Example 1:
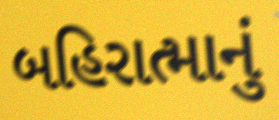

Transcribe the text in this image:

બહિરાત્માનું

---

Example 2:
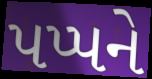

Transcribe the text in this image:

પપ્પને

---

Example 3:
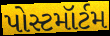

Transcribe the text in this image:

પોસ્ટમૉર્ટમ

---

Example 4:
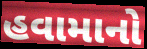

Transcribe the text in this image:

હવામાનો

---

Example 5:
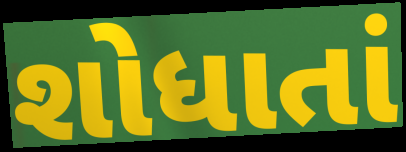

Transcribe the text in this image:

શોધાતાં